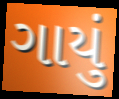
ગાયું